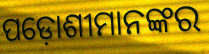
ପଡ଼ୋଶୀମାନଙ୍କର